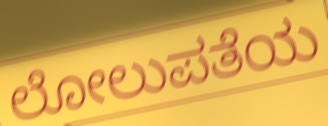
ಲೋಲುಪತೆಯ